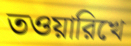
তওয়ারিখে